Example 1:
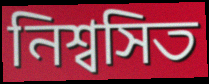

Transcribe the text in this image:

নিশ্বসিত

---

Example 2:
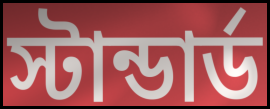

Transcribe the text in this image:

স্টান্ডার্ড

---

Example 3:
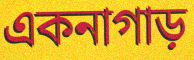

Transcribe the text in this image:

একনাগাড়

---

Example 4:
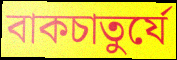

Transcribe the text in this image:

বাকচাতুর্যে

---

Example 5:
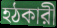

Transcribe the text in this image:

হঠকারী